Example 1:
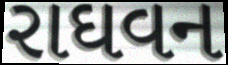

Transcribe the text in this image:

રાઘવન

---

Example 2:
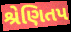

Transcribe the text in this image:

શ્રેણિતપ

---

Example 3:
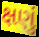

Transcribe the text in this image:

ક્ષણું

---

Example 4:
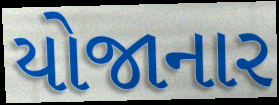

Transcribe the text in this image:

યોજાનાર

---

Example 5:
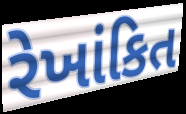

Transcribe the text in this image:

રેખાંકિત